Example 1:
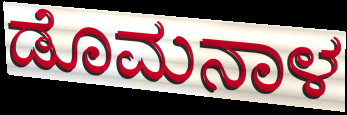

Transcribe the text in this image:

ಡೊಮನಾಳ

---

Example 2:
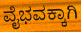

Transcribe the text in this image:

ವೈಭವಕ್ಕಾಗಿ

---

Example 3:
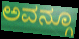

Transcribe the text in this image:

ಅವನ್ಗೂ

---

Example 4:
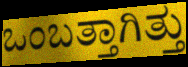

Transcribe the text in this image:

ಒಂಬತ್ತಾಗಿತ್ತು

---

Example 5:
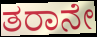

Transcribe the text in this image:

ತರಾನೇ